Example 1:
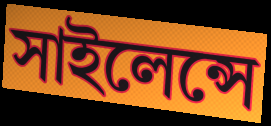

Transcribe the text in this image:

সাইলেন্সে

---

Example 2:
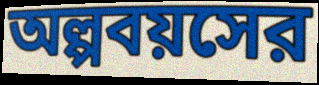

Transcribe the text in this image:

অল্পবয়সের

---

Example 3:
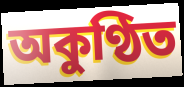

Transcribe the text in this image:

অকুণ্ঠিত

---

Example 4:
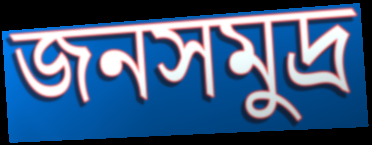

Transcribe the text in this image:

জনসমুদ্র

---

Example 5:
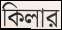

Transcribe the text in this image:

কিলার